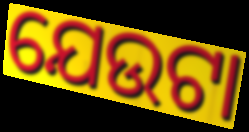
ଯେଉଟା